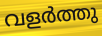
വളർത്തു